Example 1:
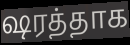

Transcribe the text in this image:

ஷரத்தாக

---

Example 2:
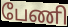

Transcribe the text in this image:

பேணி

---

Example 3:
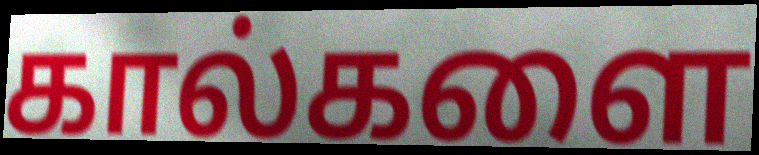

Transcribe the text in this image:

கால்களை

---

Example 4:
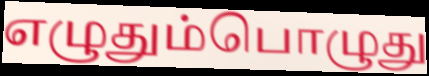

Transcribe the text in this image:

எழுதும்பொழுது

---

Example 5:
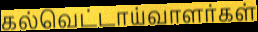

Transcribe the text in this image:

கல்வெட்டாய்வாளர்கள்